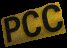
PCC